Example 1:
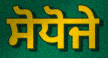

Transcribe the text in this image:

ਸੋਧੋਜੇ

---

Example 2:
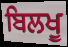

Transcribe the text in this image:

ਬਿਲਖੂ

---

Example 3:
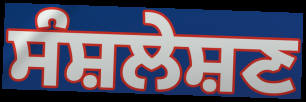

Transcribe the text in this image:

ਸੰਸ਼ਲੇਸ਼ਣ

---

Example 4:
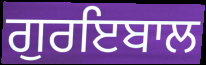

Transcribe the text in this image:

ਗੁਰਇਬਾਲ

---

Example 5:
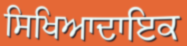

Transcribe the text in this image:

ਸਿਖਿਆਦਾਇਕ